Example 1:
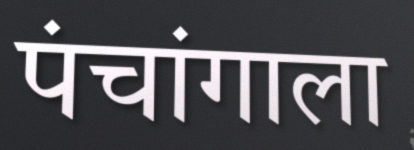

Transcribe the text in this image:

पंचांगाला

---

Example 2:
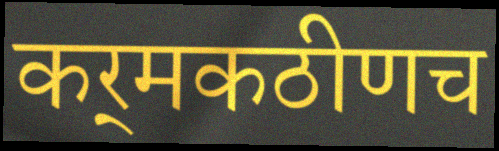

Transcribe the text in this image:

कर्मकठीणच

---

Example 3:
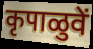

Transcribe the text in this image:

कृपाळुवें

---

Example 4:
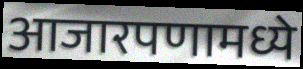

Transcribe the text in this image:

आजारपणामध्ये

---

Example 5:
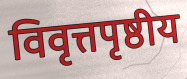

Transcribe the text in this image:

विवृत्तपृष्ठीय